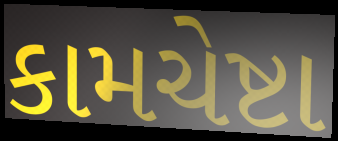
કામચેષ્ટા